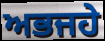
ਅਭਜਹੇ